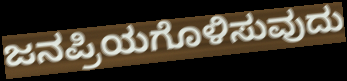
ಜನಪ್ರಿಯಗೊಳಿಸುವುದು